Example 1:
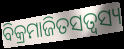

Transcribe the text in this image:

ବିକ୍ରମାଜିତସତ୍ଵସ୍ୟ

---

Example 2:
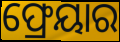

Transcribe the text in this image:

ଫ୍ରେୟାର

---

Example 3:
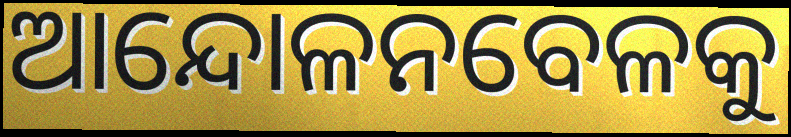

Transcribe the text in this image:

ଆନ୍ଦୋଳନବେଳକୁ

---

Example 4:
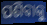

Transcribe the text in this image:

ପଶିବାକୁ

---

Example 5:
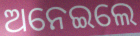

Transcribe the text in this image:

ଅନେଇଲେ